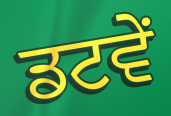
ਡਟਵੇਂ